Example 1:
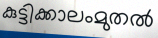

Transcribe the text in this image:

കുട്ടിക്കാലംമുതൽ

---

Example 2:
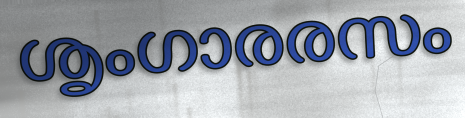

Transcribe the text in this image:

ശൃംഗാരരസം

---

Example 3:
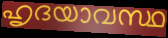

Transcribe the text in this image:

ഹൃദയാവസ്ഥ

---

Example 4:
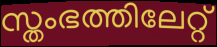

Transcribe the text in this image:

സ്തംഭത്തിലേറ്റ്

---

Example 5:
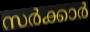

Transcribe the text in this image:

സർക്കാർ